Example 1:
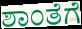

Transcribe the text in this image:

ಶಾಂತೆಗೆ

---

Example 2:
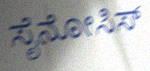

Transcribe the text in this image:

ಸೈನೋಸಿಸ್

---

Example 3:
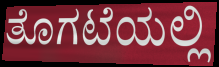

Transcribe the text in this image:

ತೊಗಟೆಯಲ್ಲಿ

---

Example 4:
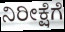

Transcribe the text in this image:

ನಿರೀಕ್ಷೆಗೆ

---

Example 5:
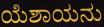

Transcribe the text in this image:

ಯೆಶಾಯನು